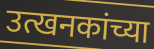
उत्खनकांच्या